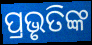
ପ୍ରଭୃତିଙ୍କ